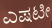
ಎಷಟೀ